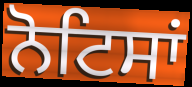
ਨੋਟਿਸਾਂ